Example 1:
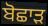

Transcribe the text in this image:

ਬੋਛਾੜ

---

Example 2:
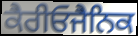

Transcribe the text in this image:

ਕੈਰੀਓਜੈਨਿਕ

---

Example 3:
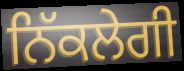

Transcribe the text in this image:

ਨਿੱਕਲੇਗੀ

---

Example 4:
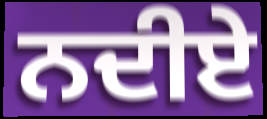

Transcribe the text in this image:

ਨਦੀਏ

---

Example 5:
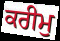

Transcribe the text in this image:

ਕਰੀਮੁ